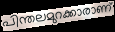
പിന്തലമുറക്കാരാണ്